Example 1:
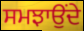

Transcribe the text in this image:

ਸਮਝਾਉੰਦੇ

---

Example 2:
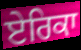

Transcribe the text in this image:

ਏਰਿਕਾ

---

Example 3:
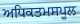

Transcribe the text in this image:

ਅਧਿਕਤਮਸਪੂਲ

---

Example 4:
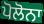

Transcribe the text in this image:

ਪੋਲੋਨਾ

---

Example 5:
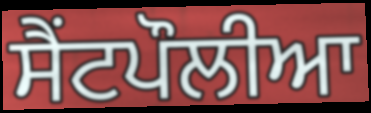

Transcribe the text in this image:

ਸੈਂਟਪੌਲੀਆ